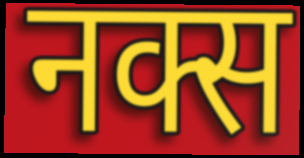
नक्स